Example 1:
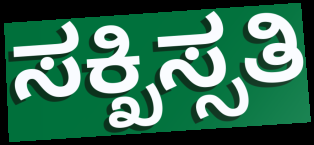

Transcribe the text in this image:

ಸಕ್ಖಿಸ್ಸತಿ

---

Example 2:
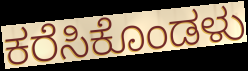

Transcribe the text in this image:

ಕರೆಸಿಕೊಂಡಳು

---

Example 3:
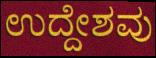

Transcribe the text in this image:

ಉದ್ದೇಶವು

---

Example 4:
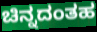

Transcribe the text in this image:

ಚಿನ್ನದಂತಹ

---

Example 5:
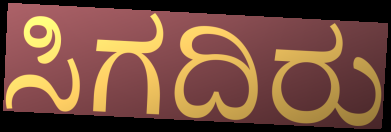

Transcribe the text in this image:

ಸಿಗದಿರು